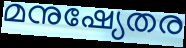
മനുഷ്യേതര